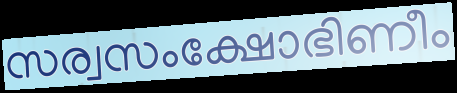
സര്വസംക്ഷോഭിണീം